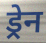
ड्रेन